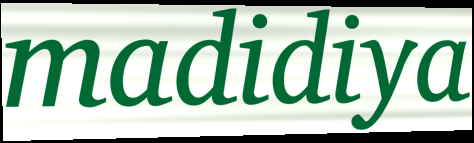
madidiya